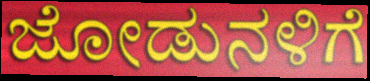
ಜೋಡುನಳಿಗೆ